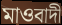
মাওবাদী